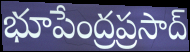
భూపేంద్రప్రసాద్